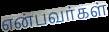
என்பவர்கள்